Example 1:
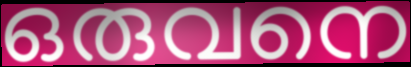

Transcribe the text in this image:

ഒരുവനെ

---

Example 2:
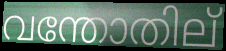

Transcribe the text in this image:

വന്തോതില്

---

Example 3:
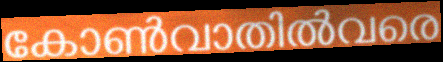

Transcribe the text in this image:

കോൺവാതിൽവരെ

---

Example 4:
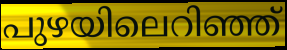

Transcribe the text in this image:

പുഴയിലെറിഞ്ഞ്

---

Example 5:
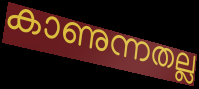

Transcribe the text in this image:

കാണുന്നതല്ല